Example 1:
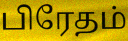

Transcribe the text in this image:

பிரேதம்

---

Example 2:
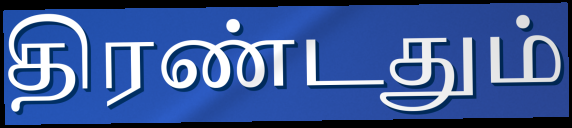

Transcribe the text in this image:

திரண்டதும்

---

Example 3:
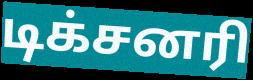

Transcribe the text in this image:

டிக்சனரி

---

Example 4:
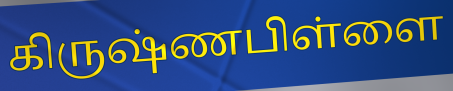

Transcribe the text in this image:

கிருஷ்ணபிள்ளை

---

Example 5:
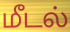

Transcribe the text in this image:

மீடல்